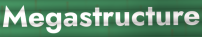
Megastructure